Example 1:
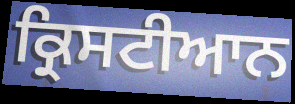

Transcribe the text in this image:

ਕ੍ਰਿਸਟੀਆਨ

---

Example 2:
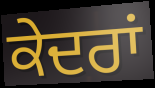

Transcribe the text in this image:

ਕੇਦਰਾਂ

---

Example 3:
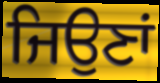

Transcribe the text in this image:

ਜਿਉਣਾਂ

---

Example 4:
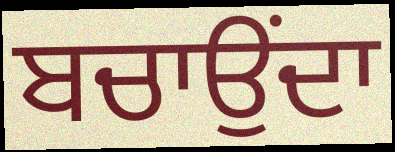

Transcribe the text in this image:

ਬਚਾਉਂਦਾ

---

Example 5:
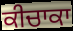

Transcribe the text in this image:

ਕੀਚਾਕਾ